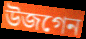
উজগেন